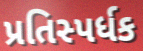
પ્રતિસ્પર્ધક